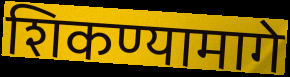
शिकण्यामागे